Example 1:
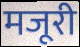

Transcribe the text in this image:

मजूरी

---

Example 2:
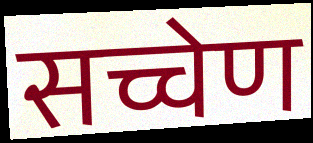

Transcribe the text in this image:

सच्चेण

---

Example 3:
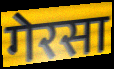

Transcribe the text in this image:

गेरसा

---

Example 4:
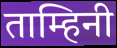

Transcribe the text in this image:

ताम्हिनी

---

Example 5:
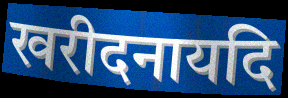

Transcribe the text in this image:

खरीदनायदि